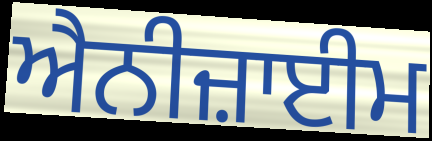
ਐਨੀਜ਼ਾਈਮ